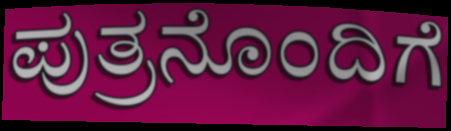
ಪುತ್ರನೊಂದಿಗೆ